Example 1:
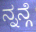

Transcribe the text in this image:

ನ್ನನ್ಗೆ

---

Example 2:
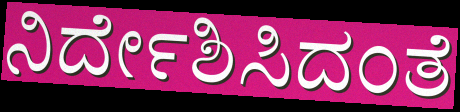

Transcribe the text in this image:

ನಿರ್ದೇಶಿಸಿದಂತೆ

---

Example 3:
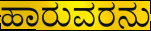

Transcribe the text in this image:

ಹಾರುವರನು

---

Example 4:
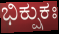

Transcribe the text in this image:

ಭಿಕ್ಷುಕಃ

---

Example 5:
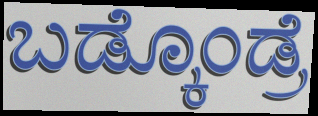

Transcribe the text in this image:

ಬಡ್ಕೊಂಡ್ರೆ